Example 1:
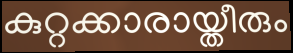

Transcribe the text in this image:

കുറ്റക്കാരായ്തീരും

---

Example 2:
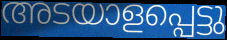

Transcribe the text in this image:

അടയാളപ്പെട്ടു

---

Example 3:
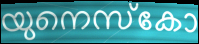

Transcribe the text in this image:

യുനെസ്കോ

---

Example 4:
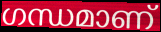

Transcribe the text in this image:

ഗന്ധമാണ്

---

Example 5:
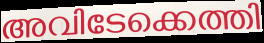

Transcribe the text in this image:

അവിടേക്കെത്തി